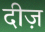
दीज़